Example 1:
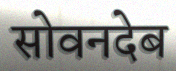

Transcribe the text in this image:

सोवनदेब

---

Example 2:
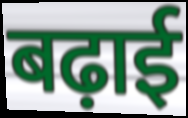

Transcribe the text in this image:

बढ़ाई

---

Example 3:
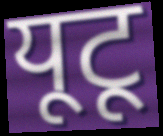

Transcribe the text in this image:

यूटू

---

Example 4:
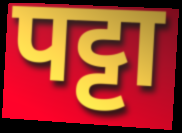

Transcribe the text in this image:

पट्टा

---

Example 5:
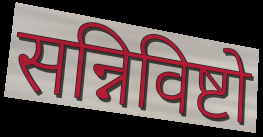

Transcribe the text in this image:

सन्निविष्टो